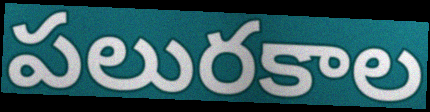
పలురకాల